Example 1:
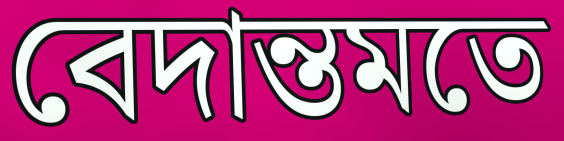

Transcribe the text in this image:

বেদান্তমতে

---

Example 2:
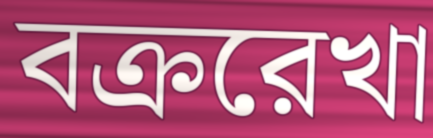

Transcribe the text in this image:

বক্ররেখা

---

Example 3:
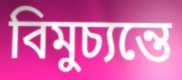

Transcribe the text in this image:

বিমুচ্যন্তে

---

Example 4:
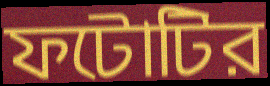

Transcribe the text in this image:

ফটোটির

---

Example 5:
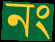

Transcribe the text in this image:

নং